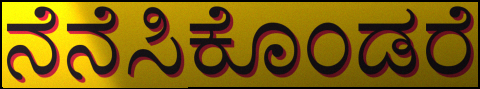
ನೆನೆಸಿಕೊಂಡರೆ